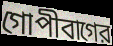
গোপীবাগের